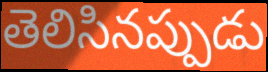
తెలిసినప్పుడు